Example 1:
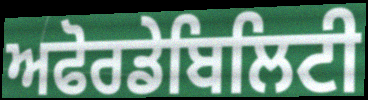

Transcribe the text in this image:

ਅਫੋਰਡੇਬਿਲਿਟੀ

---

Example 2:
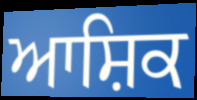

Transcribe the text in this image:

ਆਸ਼ਿਕ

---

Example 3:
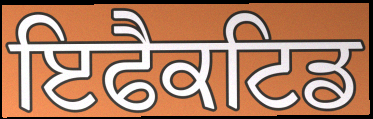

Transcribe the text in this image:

ਇਫੈਕਟਿਡ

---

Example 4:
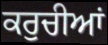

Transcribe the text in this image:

ਕਰੁਚੀਆਂ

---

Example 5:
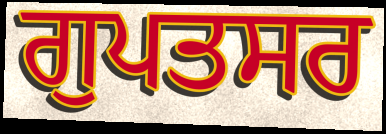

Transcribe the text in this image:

ਗੁਪਤਸਰ